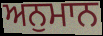
ਅਨੁਮਾਨ